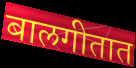
बालगीतात